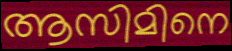
ആസിമിനെ